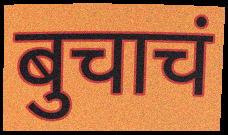
बुचाचं